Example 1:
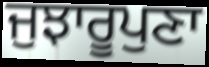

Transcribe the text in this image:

ਜੁਝਾਰੂਪੁਣਾ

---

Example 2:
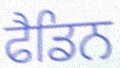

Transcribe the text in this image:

ਫੈਡਿਨ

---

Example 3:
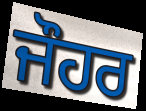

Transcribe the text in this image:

ਜੌਹਰ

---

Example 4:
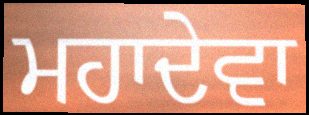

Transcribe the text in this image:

ਮਹਾਦੇਵਾ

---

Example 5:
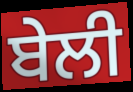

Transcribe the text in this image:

ਬੇਲੀ